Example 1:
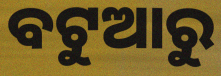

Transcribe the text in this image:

ବଟୁଆରୁ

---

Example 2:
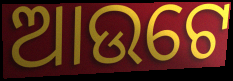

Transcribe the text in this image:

ଆଉଟେ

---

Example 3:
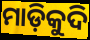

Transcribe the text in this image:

ମାଡ଼ିକୁଦି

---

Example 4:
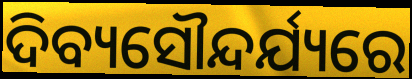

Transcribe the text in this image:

ଦିବ୍ୟସୌନ୍ଦର୍ଯ୍ୟରେ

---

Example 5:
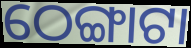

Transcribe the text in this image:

ଠେଙ୍ଗାଟା